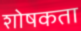
शोषकता